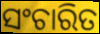
ସଂଚାରିତ